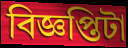
বিজ্ঞপ্তিটা